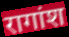
रागांश